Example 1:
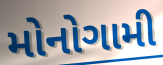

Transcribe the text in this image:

મોનોગામી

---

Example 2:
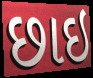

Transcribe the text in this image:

છાઇ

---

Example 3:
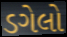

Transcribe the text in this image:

ડગેલો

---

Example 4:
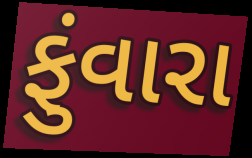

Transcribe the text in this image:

ફુંવારા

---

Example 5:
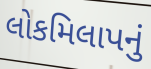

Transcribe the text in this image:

લોકમિલાપનું